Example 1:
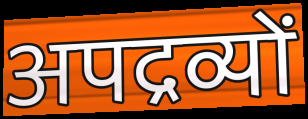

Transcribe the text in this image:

अपद्रव्यों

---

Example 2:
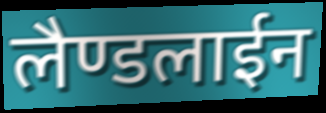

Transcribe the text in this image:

लैण्डलाईन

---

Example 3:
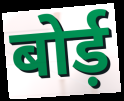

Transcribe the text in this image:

बोर्ड़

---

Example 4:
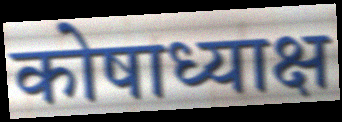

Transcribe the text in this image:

कोषाध्याक्ष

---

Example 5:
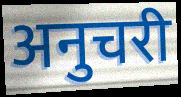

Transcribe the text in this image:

अनुचरी